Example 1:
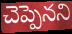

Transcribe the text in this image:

చెప్పెనని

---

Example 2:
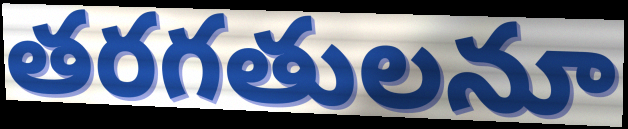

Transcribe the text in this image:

తరగతులనూ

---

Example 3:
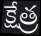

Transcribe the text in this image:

క్షేత్ర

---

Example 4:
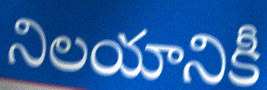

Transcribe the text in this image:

నిలయానికీ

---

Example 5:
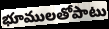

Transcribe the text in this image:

భూములతోపాటు